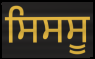
ਸਿਸਸੂ